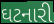
ઘટનારી